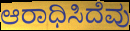
ಆರಾಧಿಸಿದೆವು